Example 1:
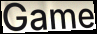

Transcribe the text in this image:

Game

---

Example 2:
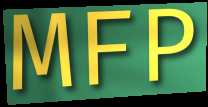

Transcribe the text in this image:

MFP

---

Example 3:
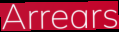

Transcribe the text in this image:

Arrears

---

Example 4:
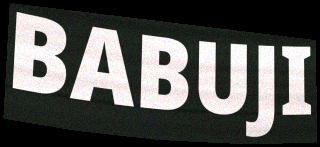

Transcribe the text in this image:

BABUJI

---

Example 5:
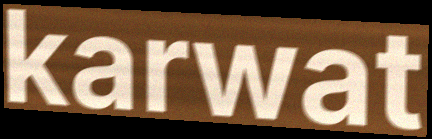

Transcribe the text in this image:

karwat